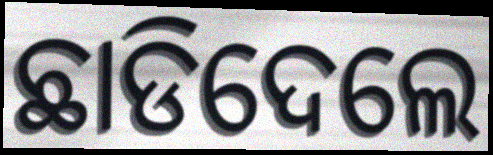
ଛାଡିଦେଲେ